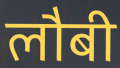
लौबी